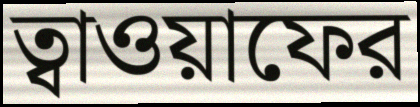
ত্বাওয়াফের